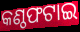
କଣ୍ଠଫଟାଇ